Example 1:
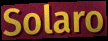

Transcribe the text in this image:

Solaro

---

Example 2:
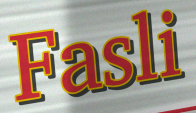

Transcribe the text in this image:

Fasli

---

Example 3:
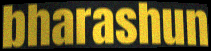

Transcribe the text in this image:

bharashun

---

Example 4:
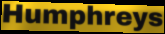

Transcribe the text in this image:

Humphreys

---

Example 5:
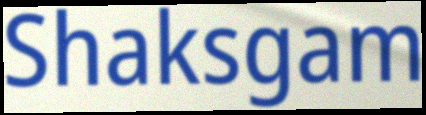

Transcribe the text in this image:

Shaksgam